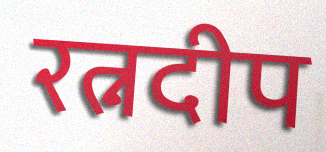
रत्नदीप